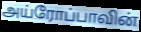
அய்ரோப்பாவின்